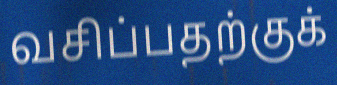
வசிப்பதற்குக்